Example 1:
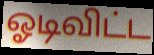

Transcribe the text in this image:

ஓடிவிட்ட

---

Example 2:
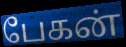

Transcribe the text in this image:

பேகன்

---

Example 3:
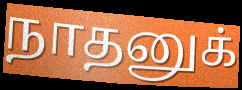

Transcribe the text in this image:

நாதனுக்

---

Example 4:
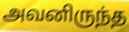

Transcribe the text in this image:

அவனிருந்த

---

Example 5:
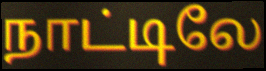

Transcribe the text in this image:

நாட்டிலே